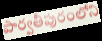
పార్వతీపురంలోని